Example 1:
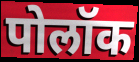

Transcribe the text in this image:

पोलॉक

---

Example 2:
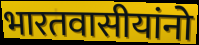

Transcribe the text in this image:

भारतवासीयांनो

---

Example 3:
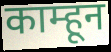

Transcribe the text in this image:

काम्हून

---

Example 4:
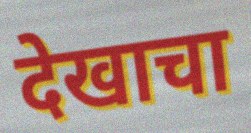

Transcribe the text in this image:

देखाचा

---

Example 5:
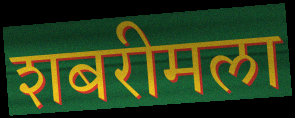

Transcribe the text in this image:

शबरीमला